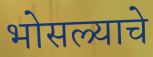
भोसल्याचे